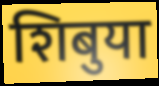
शिबुया